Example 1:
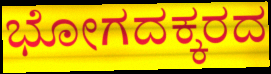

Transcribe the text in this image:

ಭೋಗದಕ್ಕರದ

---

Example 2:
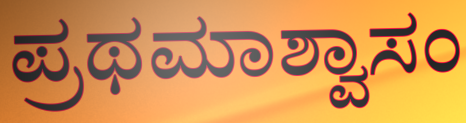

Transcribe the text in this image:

ಪ್ರಥಮಾಶ್ವಾಸಂ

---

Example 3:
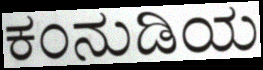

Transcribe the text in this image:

ಕಂನುಡಿಯ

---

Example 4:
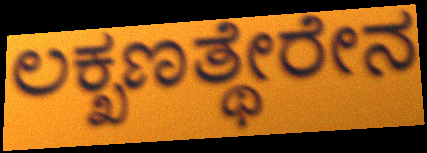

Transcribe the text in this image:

ಲಕ್ಖಣತ್ಥೇರೇನ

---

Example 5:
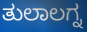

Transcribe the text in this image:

ತುಲಾಲಗ್ನ